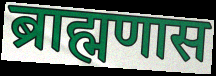
ब्राह्मणास